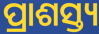
ପ୍ରାଶସ୍ତ୍ୟ